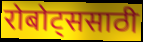
रोबोट्ससाठी